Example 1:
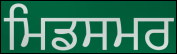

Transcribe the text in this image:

ਮਿਡਸਮਰ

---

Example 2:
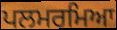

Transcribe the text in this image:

ਪਲਮਰਮਿਆ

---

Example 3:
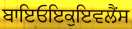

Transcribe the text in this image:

ਬਾਇਓਇਕੁਇਵਲੈਂਸ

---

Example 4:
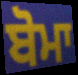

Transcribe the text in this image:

ਬੋਮਾ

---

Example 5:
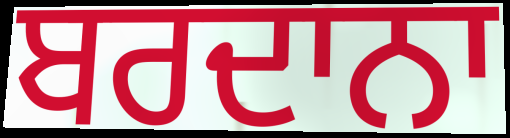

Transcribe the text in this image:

ਬਰਦਾਨਾ